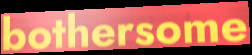
bothersome